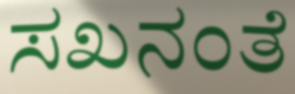
ಸಖನಂತೆ